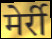
मेर्री